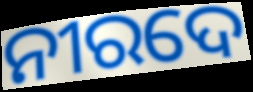
ନୀରଦେ